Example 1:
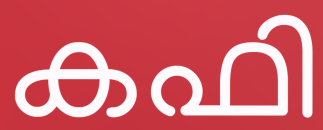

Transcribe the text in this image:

കഫി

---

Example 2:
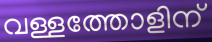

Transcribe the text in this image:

വള്ളത്തോളിന്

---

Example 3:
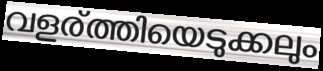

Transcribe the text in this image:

വളര്ത്തിയെടുക്കലും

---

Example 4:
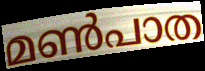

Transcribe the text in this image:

മൺപാത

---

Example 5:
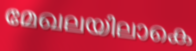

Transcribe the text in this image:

മേഖലയിലാകെ